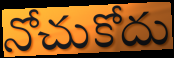
నోచుకోదు